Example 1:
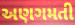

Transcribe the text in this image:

અણગમતી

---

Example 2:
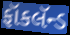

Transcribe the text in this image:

ફૉકલૅન્ડ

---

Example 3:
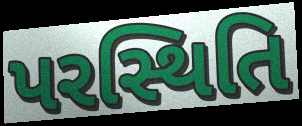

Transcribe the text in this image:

પરસ્થિતિ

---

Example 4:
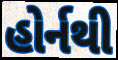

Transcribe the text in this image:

હોર્નથી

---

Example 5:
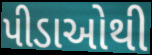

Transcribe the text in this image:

પીડાઓથી